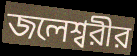
জলেশ্বরীর